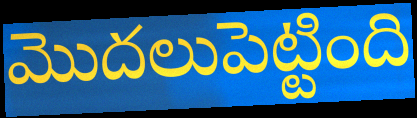
మొదలుపెట్టింది